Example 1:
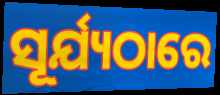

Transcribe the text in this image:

ସୂର୍ଯ୍ୟଠାରେ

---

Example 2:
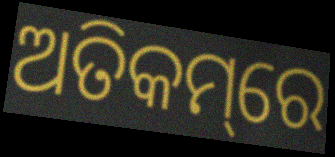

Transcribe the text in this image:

ଅତିକମ୍‌ରେ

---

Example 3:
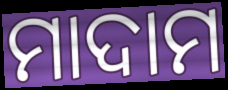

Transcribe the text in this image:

ମାଦାମ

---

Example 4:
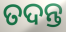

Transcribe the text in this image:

ତଦନ୍ତ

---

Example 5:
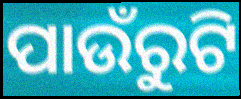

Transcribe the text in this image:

ପାଉଁରୁଟି